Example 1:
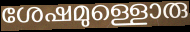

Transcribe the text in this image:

ശേഷമുള്ളൊരു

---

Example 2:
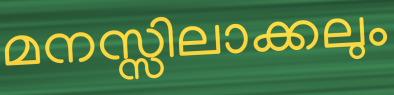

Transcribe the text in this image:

മനസ്സിലാക്കലും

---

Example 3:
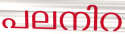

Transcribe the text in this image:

പലനിറ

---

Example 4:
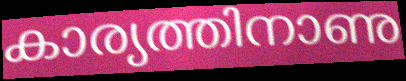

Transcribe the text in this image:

കാര്യത്തിനാണു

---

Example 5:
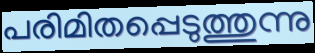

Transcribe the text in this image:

പരിമിതപ്പെടുത്തുന്നു